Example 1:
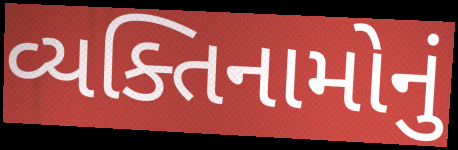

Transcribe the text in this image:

વ્યક્તિનામોનું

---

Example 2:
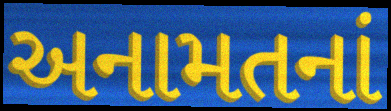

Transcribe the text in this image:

અનામતનાં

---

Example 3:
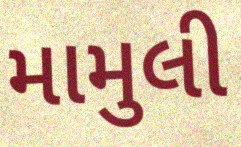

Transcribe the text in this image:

મામુલી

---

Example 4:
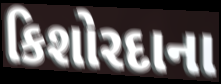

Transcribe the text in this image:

કિશોરદાના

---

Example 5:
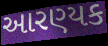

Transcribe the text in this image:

આરણ્યક